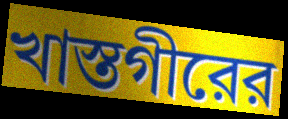
খাস্তগীরের